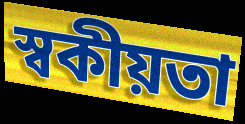
স্বকীয়তা